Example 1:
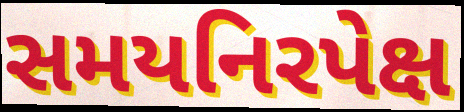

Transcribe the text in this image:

સમયનિરપેક્ષ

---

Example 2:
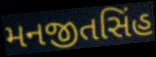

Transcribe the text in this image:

મનજીતસિંહ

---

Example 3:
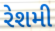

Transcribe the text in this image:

રેશમી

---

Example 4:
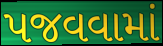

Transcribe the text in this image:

પજવવામાં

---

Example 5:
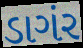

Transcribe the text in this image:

ડાગંર